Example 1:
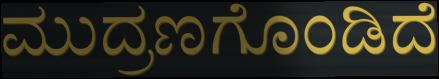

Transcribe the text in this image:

ಮುದ್ರಣಗೊಂಡಿದೆ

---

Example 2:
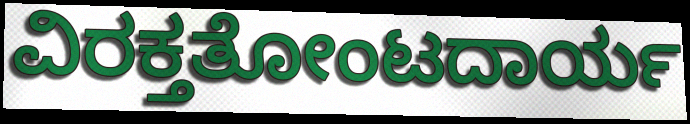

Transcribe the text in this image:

ವಿರಕ್ತತೋಂಟದಾರ್ಯ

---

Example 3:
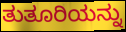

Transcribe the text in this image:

ತುತೂರಿಯನ್ನು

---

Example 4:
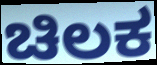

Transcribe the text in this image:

ಚಿಲಕ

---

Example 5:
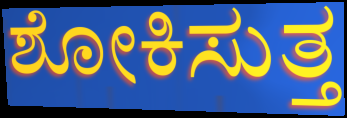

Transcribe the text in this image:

ಶೋಕಿಸುತ್ತ